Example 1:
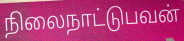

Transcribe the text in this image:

நிலைநாட்டுபவன்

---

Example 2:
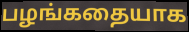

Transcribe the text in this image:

பழங்கதையாக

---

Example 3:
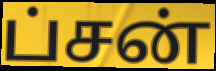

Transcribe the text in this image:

ப்சன்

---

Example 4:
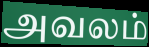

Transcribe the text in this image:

அவலம்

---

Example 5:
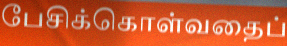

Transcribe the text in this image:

பேசிக்கொள்வதைப்